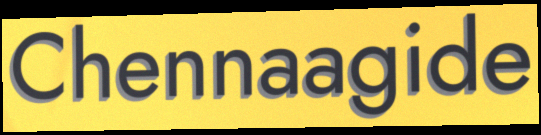
Chennaagide